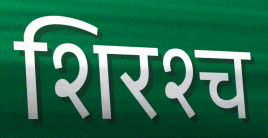
शिरश्च